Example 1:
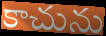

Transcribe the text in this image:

కాచును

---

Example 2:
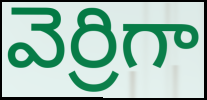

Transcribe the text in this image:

వెర్రిగా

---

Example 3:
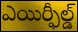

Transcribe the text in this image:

ఎయిర్ఫీల్డ్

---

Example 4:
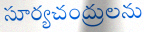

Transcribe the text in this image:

సూర్యచంద్రులను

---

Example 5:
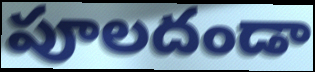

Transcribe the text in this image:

పూలదండా